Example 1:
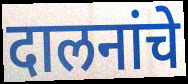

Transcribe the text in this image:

दालनांचे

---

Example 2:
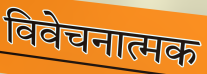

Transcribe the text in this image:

विवेचनात्मक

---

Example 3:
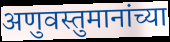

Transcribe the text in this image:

अणुवस्तुमानांच्या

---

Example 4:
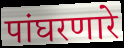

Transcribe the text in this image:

पांघरणारे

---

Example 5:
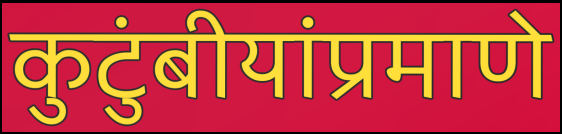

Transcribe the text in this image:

कुटुंबीयांप्रमाणे